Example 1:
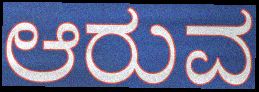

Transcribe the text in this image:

ಆರುವ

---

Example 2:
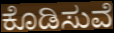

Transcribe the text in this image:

ಕೊಡಿಸುವೆ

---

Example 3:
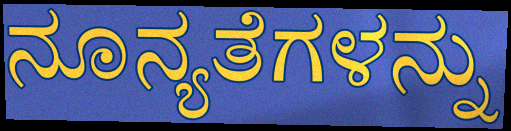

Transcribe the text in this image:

ನೂನ್ಯತೆಗಳನ್ನು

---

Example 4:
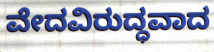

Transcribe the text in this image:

ವೇದವಿರುದ್ಧವಾದ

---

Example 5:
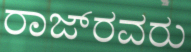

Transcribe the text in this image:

ರಾಜ್‌ರವರು